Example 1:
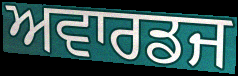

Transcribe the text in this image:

ਅਵਾਰਡਜ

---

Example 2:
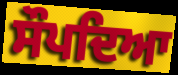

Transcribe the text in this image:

ਸੌਪਦਿਆ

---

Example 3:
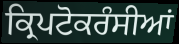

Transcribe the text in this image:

ਕ੍ਰਿਪਟੋਕਰੰਸੀਆਂ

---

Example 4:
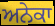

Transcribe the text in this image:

ਅਨੇਕਾ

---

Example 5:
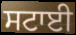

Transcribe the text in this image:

ਸਟਾਈ